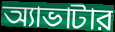
অ্যাভাটার